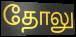
தோலு